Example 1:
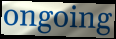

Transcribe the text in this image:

ongoing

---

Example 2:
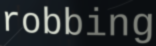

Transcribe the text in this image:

robbing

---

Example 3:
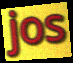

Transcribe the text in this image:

jos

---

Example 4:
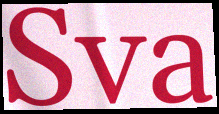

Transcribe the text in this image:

Sva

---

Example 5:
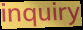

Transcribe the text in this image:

inquiry